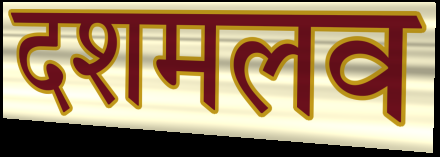
दशमलव